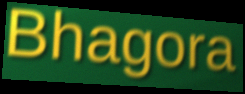
Bhagora